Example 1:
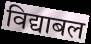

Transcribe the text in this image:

विद्याबल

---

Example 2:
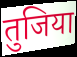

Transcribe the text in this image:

तुजिया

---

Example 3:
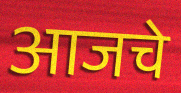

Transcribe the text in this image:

आजचे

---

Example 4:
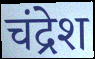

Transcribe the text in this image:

चंद्रेश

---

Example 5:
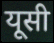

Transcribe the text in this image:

यूसी